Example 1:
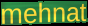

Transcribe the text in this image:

mehnat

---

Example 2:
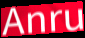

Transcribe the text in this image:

Anru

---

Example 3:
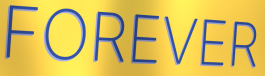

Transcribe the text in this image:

FOREVER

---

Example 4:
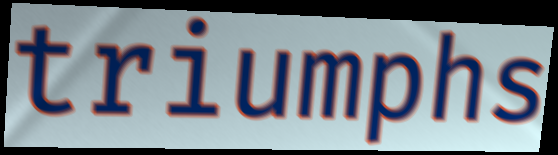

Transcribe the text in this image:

triumphs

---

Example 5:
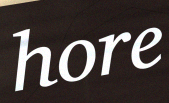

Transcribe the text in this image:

hore